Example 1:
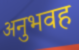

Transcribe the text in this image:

अनुभवह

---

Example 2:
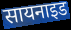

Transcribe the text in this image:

सायनाइड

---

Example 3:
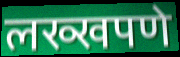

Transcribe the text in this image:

लख्खपणे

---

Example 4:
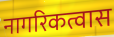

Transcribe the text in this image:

नागरिकत्वास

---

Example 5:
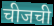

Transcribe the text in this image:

चीजची